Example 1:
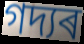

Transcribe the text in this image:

গদ্যৰ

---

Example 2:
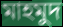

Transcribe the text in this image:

মাহমুদ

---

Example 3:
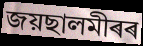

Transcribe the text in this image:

জয়ছালমীৰৰ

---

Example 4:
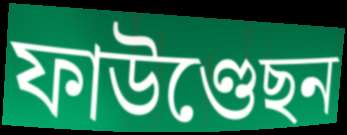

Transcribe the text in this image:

ফাউণ্ডেছন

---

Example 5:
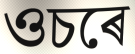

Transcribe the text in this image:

ওচৰে